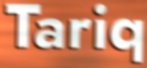
Tariq